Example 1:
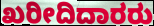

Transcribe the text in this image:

ಖರೀದಿದಾರರು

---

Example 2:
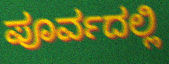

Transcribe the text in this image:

ಪೂರ್ವದಲ್ಲಿ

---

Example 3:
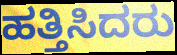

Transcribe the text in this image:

ಹತ್ತಿಸಿದರು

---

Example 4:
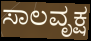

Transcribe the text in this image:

ಸಾಲವೃಕ್ಷ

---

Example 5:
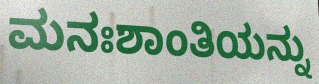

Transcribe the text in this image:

ಮನಃಶಾಂತಿಯನ್ನು